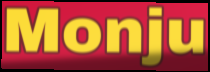
Monju